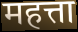
महत्ता